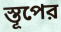
স্তূপের